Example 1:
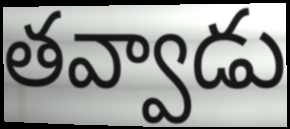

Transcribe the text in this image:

తవ్వాడు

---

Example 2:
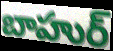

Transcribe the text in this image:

బాహుర్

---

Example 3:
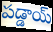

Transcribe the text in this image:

పడ్డాయ్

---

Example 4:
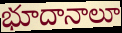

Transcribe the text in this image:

భూదానాలూ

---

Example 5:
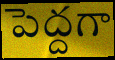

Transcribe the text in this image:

పెద్దగా